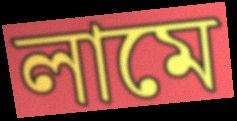
লামে